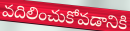
వదిలించుకోవడానికి